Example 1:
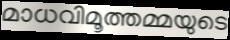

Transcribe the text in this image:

മാധവിമൂത്തമ്മയുടെ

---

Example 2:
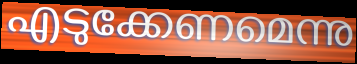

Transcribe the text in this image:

എടുക്കേണമെന്നു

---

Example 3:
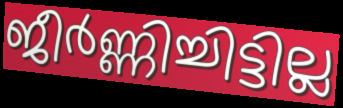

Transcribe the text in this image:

ജീർണ്ണിച്ചിട്ടില്ല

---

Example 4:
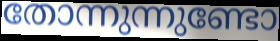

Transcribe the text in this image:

തോന്നുന്നുണ്ടോ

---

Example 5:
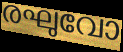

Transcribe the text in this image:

രഘുവോ